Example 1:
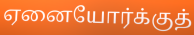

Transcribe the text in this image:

ஏனையோர்க்குத்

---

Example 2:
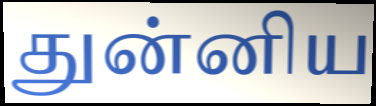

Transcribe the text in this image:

துன்னிய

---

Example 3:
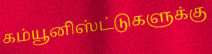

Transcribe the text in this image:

கம்யூனிஸ்ட்டுகளுக்கு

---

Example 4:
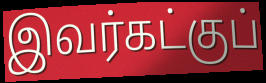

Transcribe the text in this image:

இவர்கட்குப்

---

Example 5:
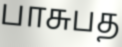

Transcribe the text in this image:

பாசுபத